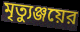
মৃত্যুঞ্জয়ের